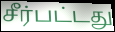
சீர்பட்டது